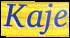
Kaje